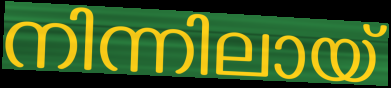
നിന്നിലായ്